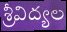
శ్రీవిద్యల